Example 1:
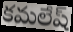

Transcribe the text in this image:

కమలేష్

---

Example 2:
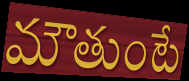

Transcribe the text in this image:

మౌతుంటే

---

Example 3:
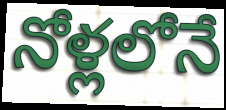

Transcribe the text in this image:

నోళ్లలోనే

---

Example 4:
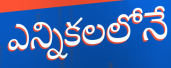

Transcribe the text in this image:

ఎన్నికలలోనే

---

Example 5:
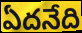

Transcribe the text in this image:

ఏదనేది